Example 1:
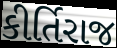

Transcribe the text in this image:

કીર્તિરાજ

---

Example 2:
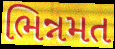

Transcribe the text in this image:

ભિન્નમત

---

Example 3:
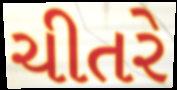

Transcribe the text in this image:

ચીતરે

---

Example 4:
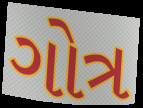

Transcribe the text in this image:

ગોત્ર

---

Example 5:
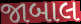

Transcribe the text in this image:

જાબાલ